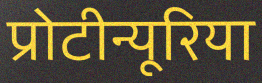
प्रोटीन्यूरिया